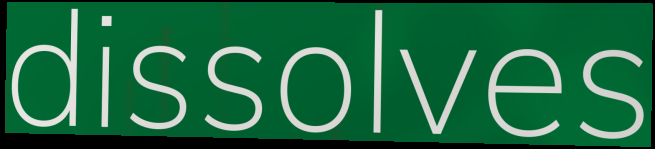
dissolves